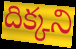
దిక్కని